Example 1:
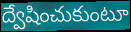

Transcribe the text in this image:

ద్వేషించుకుంటూ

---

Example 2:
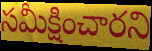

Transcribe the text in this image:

సమీక్షించారని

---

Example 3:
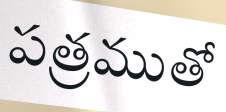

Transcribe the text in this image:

పత్రముతో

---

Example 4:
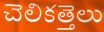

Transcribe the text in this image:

చెలికత్తెలు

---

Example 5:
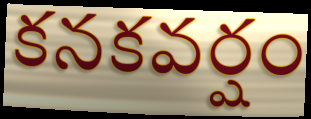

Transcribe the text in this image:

కనకవర్షం